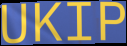
UKIP